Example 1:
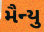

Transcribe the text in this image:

મૈન્યુ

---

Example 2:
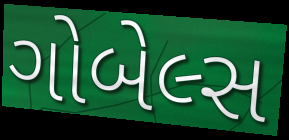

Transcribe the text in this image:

ગોબેલ્સ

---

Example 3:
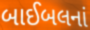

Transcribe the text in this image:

બાઈબલનાં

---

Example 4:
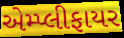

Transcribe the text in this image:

એમ્પ્લીફાયર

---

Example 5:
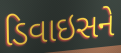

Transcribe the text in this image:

ડિવાઇસને